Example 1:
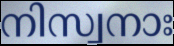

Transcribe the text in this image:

നിസ്വനാഃ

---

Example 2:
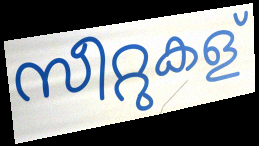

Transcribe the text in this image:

സീറ്റുകള്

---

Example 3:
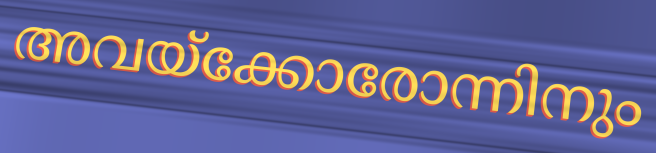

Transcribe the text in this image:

അവയ്ക്കോരോന്നിനും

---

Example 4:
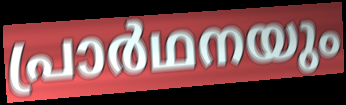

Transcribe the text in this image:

പ്രാർഥനയും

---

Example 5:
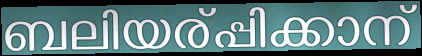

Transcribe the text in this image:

ബലിയര്പ്പിക്കാന്